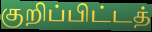
குறிப்பிட்டத்